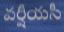
వర్షీయసీ